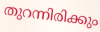
തുറന്നിരിക്കും